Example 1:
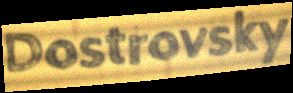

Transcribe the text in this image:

Dostrovsky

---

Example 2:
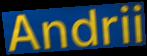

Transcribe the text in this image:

Andrii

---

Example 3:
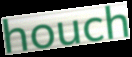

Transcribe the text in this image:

houch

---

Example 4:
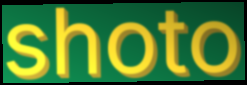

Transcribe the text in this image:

shoto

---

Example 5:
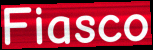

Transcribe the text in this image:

Fiasco